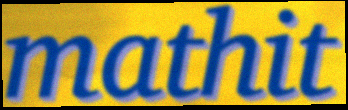
mathit